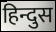
हिन्दुस